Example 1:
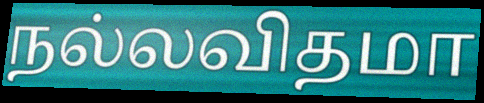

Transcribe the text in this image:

நல்லவிதமா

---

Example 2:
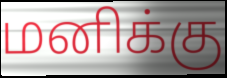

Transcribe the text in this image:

மனிக்கு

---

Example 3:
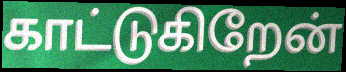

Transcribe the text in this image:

காட்டுகிறேன்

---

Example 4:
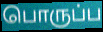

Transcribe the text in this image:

பொருப்ப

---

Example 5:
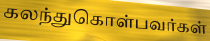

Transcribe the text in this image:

கலந்துகொள்பவர்கள்